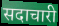
सदाचारी